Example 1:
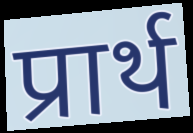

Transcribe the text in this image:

प्रार्थ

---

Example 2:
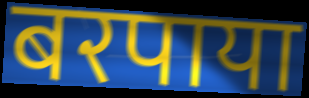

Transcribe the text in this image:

बरपाया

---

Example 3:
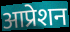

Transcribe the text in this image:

आप्रेशन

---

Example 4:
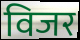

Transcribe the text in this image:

विजर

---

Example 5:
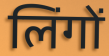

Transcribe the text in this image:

लिंगों